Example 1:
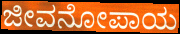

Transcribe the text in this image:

ಜೀವನೋಪಾಯ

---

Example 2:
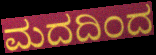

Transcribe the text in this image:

ಮದದಿಂದ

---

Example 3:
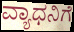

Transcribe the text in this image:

ವ್ಯಾಧನಿಗೆ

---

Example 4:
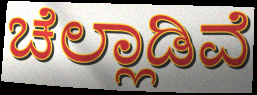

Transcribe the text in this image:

ಚೆಲ್ಲಾಡಿವೆ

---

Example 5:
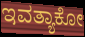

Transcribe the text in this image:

ಇವತ್ಯಾಕೋ